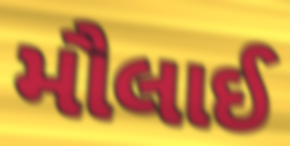
મૌલાઈ